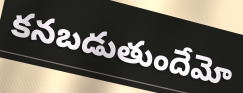
కనబడుతుందేమో